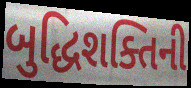
બુદ્ધિશક્તિની